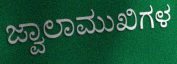
ಜ್ವಾಲಾಮುಖಿಗಳ